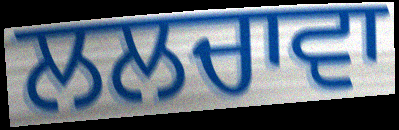
ਲਲਚਾਵਾ